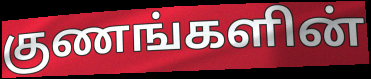
குணங்களின்